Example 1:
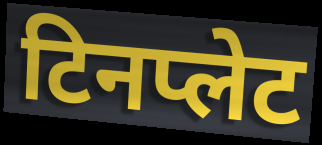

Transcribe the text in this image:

टिनप्लेट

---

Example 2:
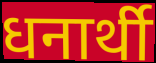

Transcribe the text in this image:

धनार्थी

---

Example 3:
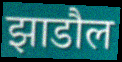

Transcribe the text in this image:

झाडौल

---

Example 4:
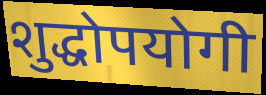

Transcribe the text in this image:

शुद्धोपयोगी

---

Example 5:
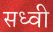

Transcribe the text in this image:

सध्वी